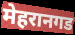
मेहरानगड